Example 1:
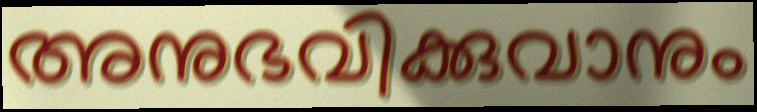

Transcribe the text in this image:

അനുഭവിക്കുവാനും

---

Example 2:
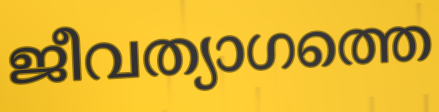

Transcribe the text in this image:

ജീവത്യാഗത്തെ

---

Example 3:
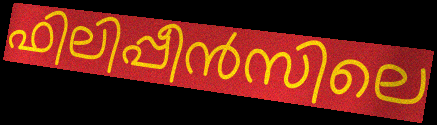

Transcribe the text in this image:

ഫിലിപ്പീൻസിലെ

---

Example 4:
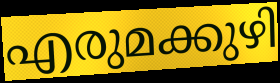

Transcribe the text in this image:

എരുമക്കുഴി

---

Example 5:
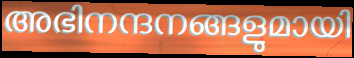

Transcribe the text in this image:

അഭിനന്ദനങ്ങളുമായി